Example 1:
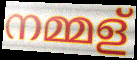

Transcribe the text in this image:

നമ്മള്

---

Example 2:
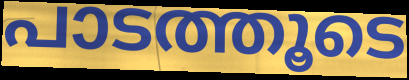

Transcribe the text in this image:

പാടത്തൂടെ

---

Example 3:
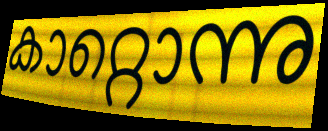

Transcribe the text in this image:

കാറ്റൊന്നു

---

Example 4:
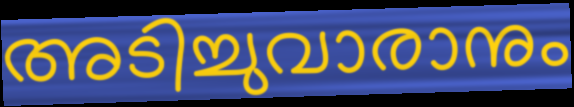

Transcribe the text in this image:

അടിച്ചുവാരാനും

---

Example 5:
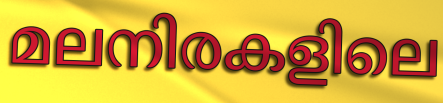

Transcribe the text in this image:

മലനിരകളിലെ